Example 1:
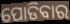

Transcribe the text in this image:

ପୋଡିବାର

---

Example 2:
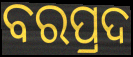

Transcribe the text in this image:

ବରପ୍ରଦ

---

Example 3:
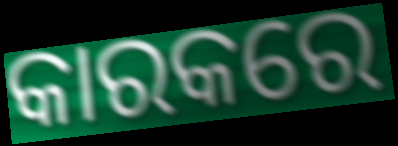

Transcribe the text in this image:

କାରକରେ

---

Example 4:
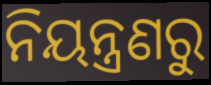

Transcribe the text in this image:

ନିୟନ୍ତ୍ରଣରୁ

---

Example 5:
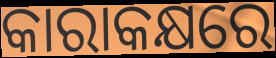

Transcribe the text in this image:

କାରାକକ୍ଷରେ